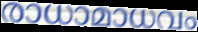
രാധാമാധവം